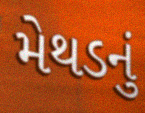
મેથડનું